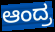
ಆಂದ್ರ